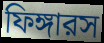
ফিঙ্গারস